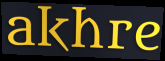
akhre